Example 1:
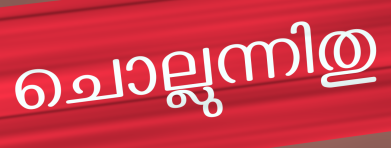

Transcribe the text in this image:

ചൊല്ലുന്നിതു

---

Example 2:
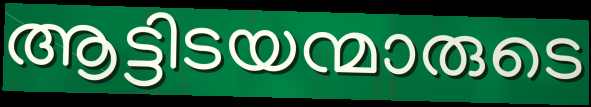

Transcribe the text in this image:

ആട്ടിടയന്മാരുടെ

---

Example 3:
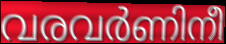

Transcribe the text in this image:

വരവർണിനീ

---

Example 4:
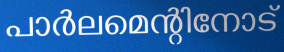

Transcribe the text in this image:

പാർലമെന്റിനോട്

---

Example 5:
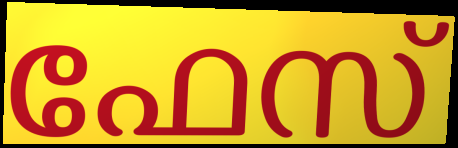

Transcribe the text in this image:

ഫേസ്